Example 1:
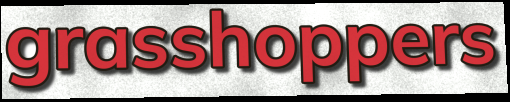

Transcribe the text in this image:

grasshoppers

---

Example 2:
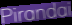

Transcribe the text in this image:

Pirandai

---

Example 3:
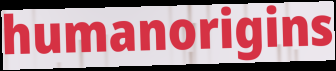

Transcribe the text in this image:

humanorigins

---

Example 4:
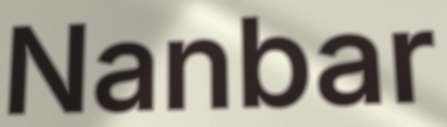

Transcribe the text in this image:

Nanbar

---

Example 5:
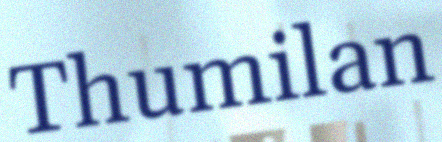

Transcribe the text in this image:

Thumilan